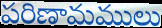
పరిణామములు